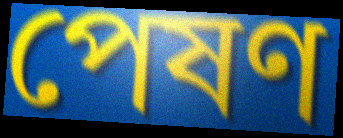
পেষণ